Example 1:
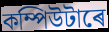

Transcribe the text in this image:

কম্পিউটাৰে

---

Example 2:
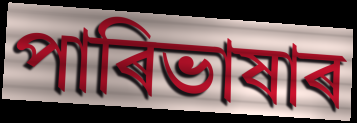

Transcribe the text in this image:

পাৰিভাষাৰ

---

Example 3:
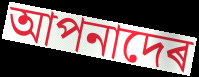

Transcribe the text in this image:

আপনাদেৰ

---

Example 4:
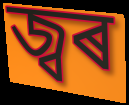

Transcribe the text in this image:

জ্বৰ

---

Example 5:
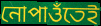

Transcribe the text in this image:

নোপাওঁতেই